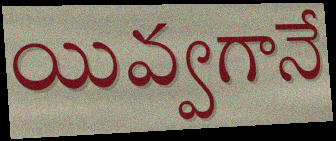
యివ్వగానే